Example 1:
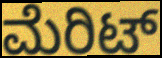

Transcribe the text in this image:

ಮೆರಿಟ್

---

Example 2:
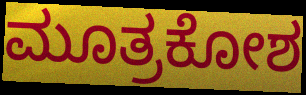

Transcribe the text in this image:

ಮೂತ್ರಕೋಶ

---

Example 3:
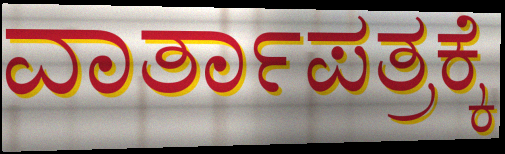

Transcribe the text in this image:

ವಾರ್ತಾಪತ್ರಕ್ಕೆ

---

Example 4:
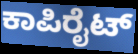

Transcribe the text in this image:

ಕಾಪಿರೈಟ್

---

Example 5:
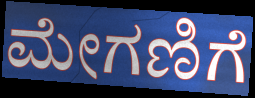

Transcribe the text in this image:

ಮೇಗಣಿಗೆ